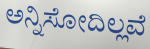
ಅನ್ನಿಸೋದಿಲ್ಲವೆ